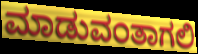
ಮಾಡುವಂತಾಗಲಿ